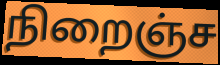
நிறைஞ்ச